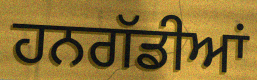
ਹਨਗੱਡੀਆਂ